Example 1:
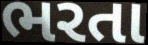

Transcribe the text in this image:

ભરતા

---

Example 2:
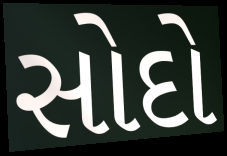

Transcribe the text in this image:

સોદો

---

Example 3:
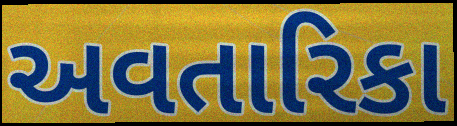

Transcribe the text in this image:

અવતારિકા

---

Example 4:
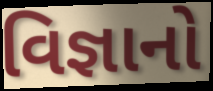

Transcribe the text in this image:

વિજ્ઞાનો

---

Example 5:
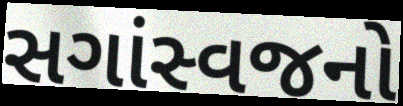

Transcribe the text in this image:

સગાંસ્વજનો